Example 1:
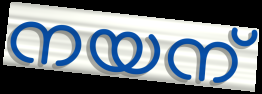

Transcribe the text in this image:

നയന്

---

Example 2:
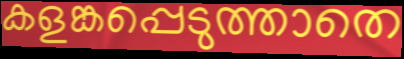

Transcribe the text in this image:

കളങ്കപ്പെടുത്താതെ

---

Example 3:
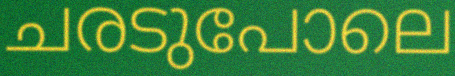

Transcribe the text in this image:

ചരടുപോലെ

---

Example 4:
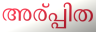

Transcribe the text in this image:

അര്പ്പിത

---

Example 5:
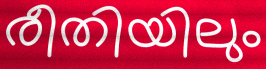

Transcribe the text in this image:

രീതിയിലും